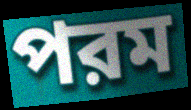
পরম